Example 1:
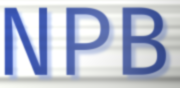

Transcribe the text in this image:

NPB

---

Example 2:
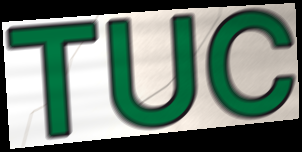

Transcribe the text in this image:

TUC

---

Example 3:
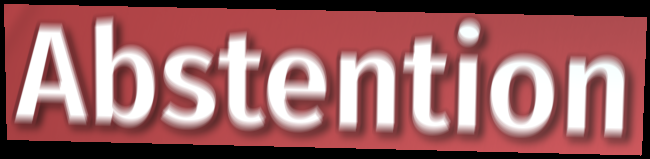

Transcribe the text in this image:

Abstention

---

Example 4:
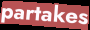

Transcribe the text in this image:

partakes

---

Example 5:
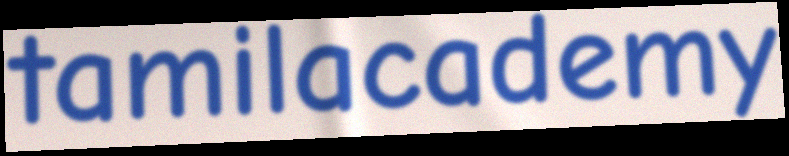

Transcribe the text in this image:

tamilacademy